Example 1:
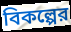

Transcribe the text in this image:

বিকল্পের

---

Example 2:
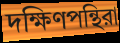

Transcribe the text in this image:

দক্ষিণপন্থিরা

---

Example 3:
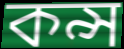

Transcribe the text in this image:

কন্স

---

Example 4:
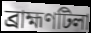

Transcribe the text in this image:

ব্রাহ্মণটিলা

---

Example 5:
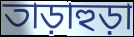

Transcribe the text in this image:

তাড়াহুড়া